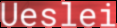
Ueslei